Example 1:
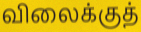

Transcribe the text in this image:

விலைக்குத்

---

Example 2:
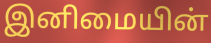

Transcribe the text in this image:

இனிமையின்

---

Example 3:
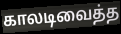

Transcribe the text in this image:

காலடிவைத்த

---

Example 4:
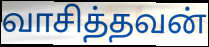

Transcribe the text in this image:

வாசித்தவன்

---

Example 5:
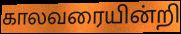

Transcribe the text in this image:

காலவரையின்றி